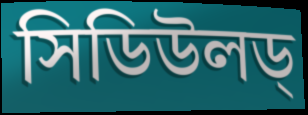
সিডিউলড্